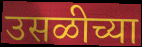
उसळीच्या